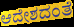
ಆದೇಶದಂತೆ